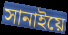
সানাইয়ে